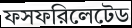
ফসফরিলেটেড